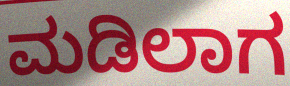
ಮಡಿಲಾಗ